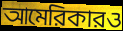
আমেরিকারও